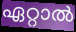
ഏറ്റാൽ